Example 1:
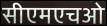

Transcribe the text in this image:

सीएमएचओ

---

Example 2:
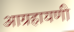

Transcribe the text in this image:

आग्रहायणी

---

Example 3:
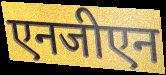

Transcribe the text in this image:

एनजीएन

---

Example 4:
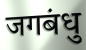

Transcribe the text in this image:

जगबंधु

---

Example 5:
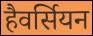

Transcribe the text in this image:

हैवर्सियन